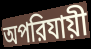
অপরিযায়ী